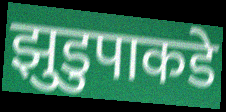
झुडुपाकडे